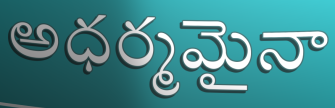
అధర్మమైనా